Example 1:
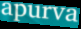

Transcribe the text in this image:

apurva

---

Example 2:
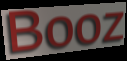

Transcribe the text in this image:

Booz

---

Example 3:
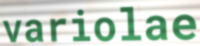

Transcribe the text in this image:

variolae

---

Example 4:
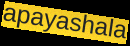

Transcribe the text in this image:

apayashala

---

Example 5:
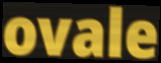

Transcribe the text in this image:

ovale